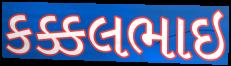
કક્કલભાઇ